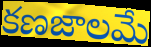
కణజాలమే